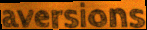
aversions